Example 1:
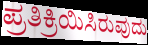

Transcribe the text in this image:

ಪ್ರತಿಕ್ರಿಯಿಸಿರುವುದು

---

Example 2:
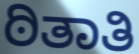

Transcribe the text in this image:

ಠಿತಾತಿ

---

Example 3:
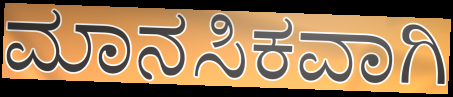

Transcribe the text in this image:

ಮಾನಸಿಕವಾಗಿ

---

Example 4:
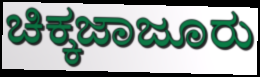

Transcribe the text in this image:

ಚಿಕ್ಕಜಾಜೂರು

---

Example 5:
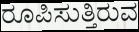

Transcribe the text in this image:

ರೂಪಿಸುತ್ತಿರುವ